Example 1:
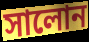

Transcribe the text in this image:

সালোন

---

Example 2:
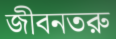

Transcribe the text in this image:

জীবনতরু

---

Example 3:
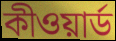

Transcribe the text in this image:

কীওয়ার্ড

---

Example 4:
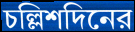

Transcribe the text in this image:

চল্লিশদিনের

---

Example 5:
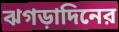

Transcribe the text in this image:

ঝগড়াদিনের